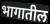
भागातील